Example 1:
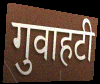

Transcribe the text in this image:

गुवाहटी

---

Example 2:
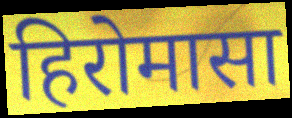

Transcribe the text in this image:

हिरोमासा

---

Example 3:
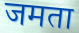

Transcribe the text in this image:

जमता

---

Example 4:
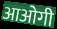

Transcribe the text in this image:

आओगी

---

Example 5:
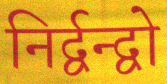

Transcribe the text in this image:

निर्द्वन्द्वो